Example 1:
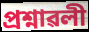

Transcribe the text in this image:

প্ৰশ্নাৱলী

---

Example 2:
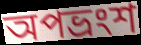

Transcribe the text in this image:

অপভ্ৰংশ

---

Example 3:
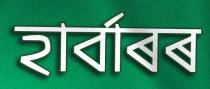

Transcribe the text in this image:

হাৰ্বাৰৰ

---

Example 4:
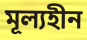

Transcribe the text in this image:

মূল্যহীন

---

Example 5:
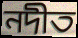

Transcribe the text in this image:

নদীত